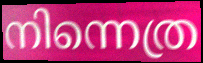
നിന്നെത്ര